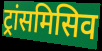
ट्रांसमिसिव